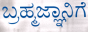
ಬ್ರಹ್ಮಜ್ಞಾನಿಗೆ